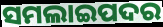
ସମଲାଇପଦର